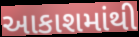
આકાશમાંથી